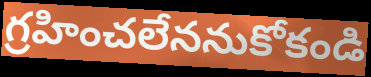
గ్రహించలేననుకోకండి